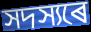
সদস্যৰে